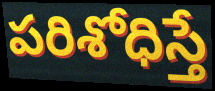
పరిశోధిస్తే